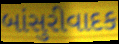
બાંસુરીવાદક